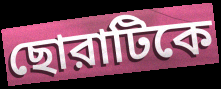
ছোরাটিকে